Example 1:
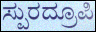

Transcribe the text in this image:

ಸ್ಪುರದ್ರೂಪಿ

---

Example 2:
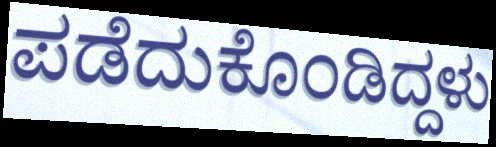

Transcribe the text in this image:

ಪಡೆದುಕೊಂಡಿದ್ದಳು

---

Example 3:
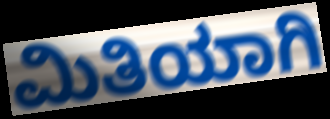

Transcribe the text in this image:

ಮಿತಿಯಾಗಿ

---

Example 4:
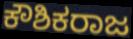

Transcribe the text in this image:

ಕೌಶಿಕರಾಜ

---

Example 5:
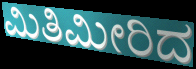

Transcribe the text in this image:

ಮಿತಿಮೀರಿದ